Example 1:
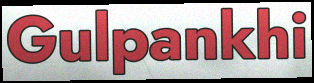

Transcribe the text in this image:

Gulpankhi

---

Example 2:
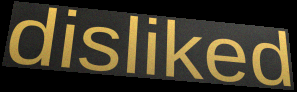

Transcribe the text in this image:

disliked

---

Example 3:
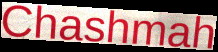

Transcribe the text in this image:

Chashmah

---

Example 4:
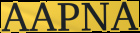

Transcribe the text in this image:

AAPNA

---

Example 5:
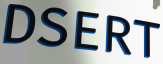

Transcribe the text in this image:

DSERT